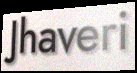
Jhaveri